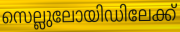
സെല്ലുലോയിഡിലേക്ക്